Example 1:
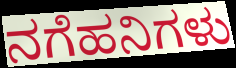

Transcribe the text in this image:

ನಗೆಹನಿಗಳು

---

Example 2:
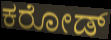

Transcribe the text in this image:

ಕರೋಡ್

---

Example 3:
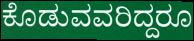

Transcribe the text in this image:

ಕೊಡುವವರಿದ್ದರೂ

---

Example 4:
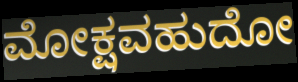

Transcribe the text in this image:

ಮೋಕ್ಷವಹುದೋ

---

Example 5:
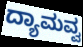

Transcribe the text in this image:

ದ್ಯಾಮವ್ವ